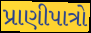
પ્રાણીપાત્રો